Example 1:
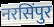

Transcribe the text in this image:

नरसिंपुर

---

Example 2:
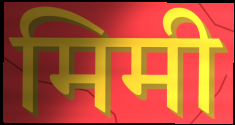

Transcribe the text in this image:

मिमी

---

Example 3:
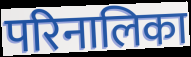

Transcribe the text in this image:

परिनालिका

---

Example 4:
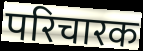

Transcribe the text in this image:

परिचारक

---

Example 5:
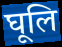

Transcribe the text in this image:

घूलि